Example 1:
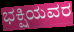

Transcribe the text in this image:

ಭಕ್ಷಿಯವರ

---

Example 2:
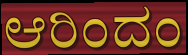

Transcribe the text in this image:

ಆರಿಂದಂ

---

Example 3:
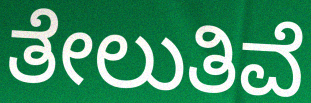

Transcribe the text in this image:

ತೇಲುತಿವೆ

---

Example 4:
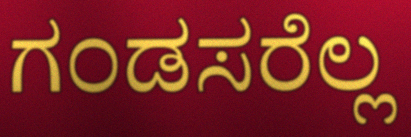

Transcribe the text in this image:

ಗಂಡಸರೆಲ್ಲ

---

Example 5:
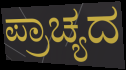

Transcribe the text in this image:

ಪ್ರಾಚ್ಯದ